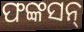
ଫଙ୍କସନ୍